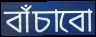
বাঁচাবো